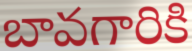
బావగారికి